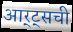
आर्ट्सची